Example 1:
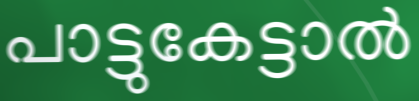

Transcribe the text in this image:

പാട്ടുകേട്ടാൽ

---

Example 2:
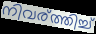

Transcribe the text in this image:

നിവര്ത്തിച്ച്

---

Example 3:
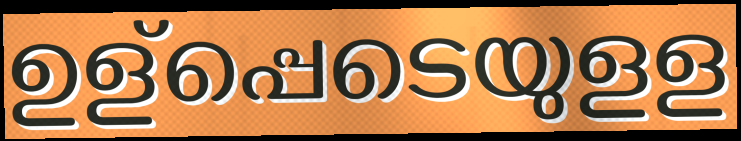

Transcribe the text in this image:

ഉള്പ്പെടെയുളള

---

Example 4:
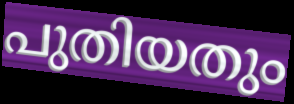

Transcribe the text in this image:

പുതിയതും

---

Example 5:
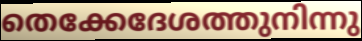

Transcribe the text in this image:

തെക്കേദേശത്തുനിന്നു